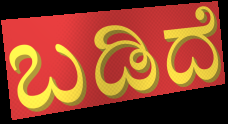
ಬಡಿದೆ